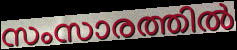
സംസാരത്തിൽ